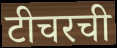
टीचरची